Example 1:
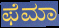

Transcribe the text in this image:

ಫೆಮಾ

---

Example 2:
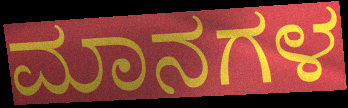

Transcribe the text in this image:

ಮಾನಗಳ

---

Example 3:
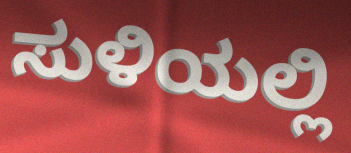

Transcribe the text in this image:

ಸುಳಿಯಲ್ಲಿ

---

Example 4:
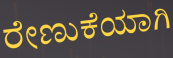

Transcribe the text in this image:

ರೇಣುಕೆಯಾಗಿ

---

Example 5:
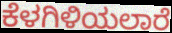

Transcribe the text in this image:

ಕೆಳಗಿಳಿಯಲಾರೆ